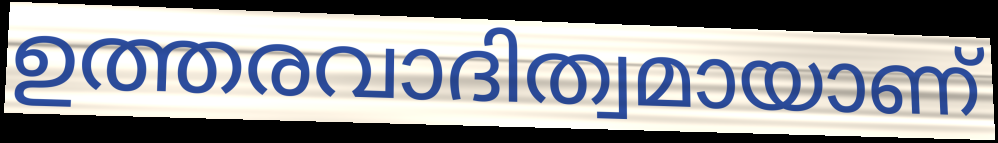
ഉത്തരവാദിത്വമായാണ്